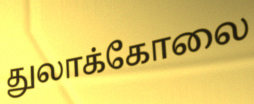
துலாக்கோலை